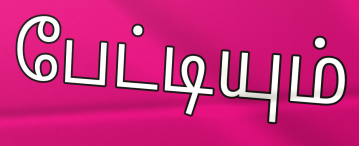
பேட்டியும்